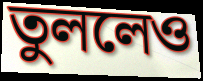
তুললেও